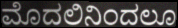
ಮೊದಲಿನಿಂದಲೂ